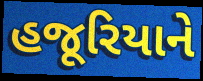
હજૂરિયાને